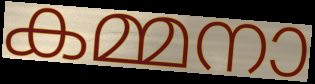
കമ്മനാ